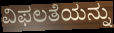
ವಿಫಲತೆಯನ್ನು